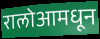
रालोआमधून